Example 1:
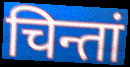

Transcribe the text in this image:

चिन्तां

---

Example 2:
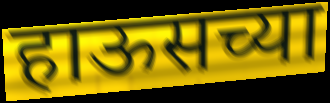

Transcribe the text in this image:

हाऊसच्या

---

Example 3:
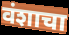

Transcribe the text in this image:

वंशाचा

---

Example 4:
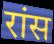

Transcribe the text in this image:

रांस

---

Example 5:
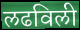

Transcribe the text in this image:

लढविली